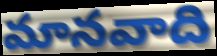
మానవాది